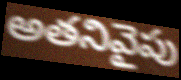
అతనివైపు